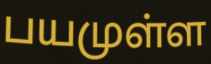
பயமுள்ள